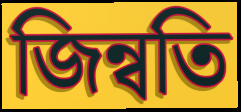
জিন্বতি